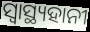
ସ୍ବାସ୍ଥ୍ୟହାନୀ